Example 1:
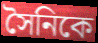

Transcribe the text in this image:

সৈনিকে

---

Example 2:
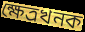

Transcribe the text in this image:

ক্ষেত্ৰখনক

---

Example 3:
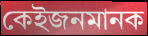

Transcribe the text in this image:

কেইজনমানক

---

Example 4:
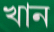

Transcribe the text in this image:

খান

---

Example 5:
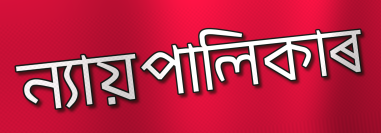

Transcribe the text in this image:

ন্যায়পালিকাৰ